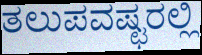
ತಲುಪವಷ್ಟರಲ್ಲಿ